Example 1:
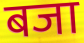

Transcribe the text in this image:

बजा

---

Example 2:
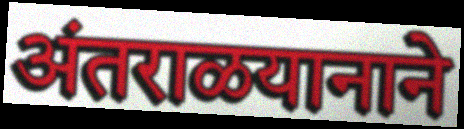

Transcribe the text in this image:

अंतराळयानाने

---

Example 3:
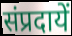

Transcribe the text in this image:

संप्रदायें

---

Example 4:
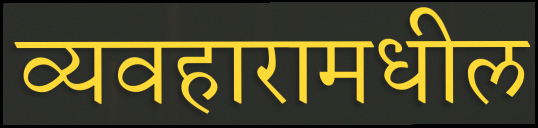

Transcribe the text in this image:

व्यवहारामधील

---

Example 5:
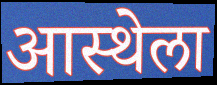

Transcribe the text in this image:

आस्थेला